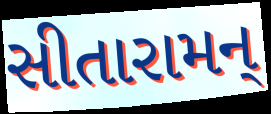
સીતારામન્